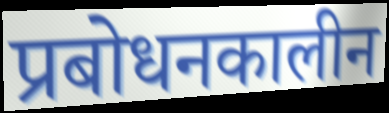
प्रबोधनकालीन